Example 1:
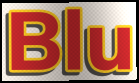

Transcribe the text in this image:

Blu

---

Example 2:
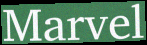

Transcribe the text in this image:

Marvel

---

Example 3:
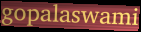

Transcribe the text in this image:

gopalaswami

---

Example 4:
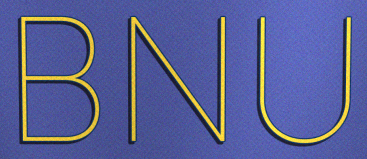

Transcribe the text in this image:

BNU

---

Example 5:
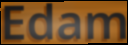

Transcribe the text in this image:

Edam